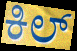
ಕಿಲ್